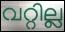
വറ്റില്ല